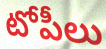
టోపీలు